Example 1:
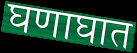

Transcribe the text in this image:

घणाघात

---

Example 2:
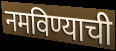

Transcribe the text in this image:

नमविण्याची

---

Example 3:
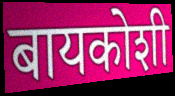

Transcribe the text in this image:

बायकोशी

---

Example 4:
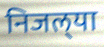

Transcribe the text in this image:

निजल्या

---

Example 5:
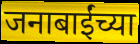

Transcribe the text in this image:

जनाबाईंच्या